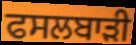
ਫਸਲਬਾੜੀ